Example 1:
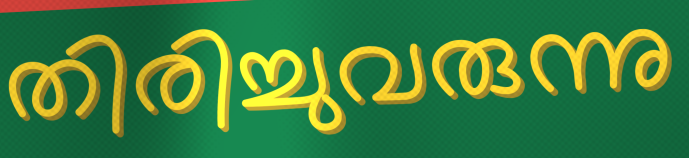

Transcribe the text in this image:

തിരിച്ചുവരുന്നു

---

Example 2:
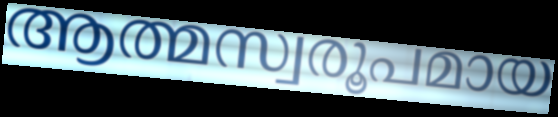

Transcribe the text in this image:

ആത്മസ്വരൂപമായ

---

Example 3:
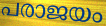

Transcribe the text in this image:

പരാജയം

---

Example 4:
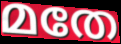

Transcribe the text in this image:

മതേ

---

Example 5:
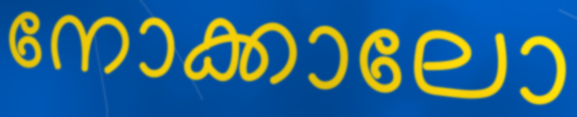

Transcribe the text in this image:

നോക്കാലോ